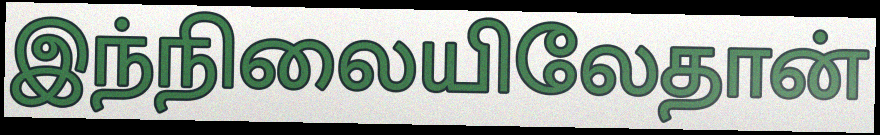
இந்நிலையிலேதான்